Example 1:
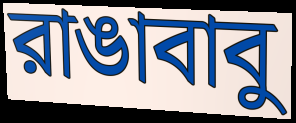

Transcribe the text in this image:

রাঙাবাবু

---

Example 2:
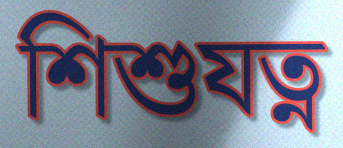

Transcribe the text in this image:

শিশুযত্ন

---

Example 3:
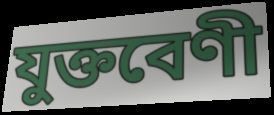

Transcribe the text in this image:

যুক্তবেণী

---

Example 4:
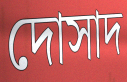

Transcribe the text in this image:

দোসাদ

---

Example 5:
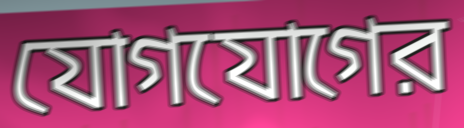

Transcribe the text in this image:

যোগযোগের